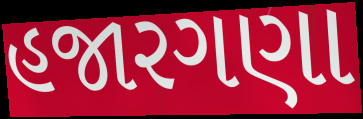
હજારગણા